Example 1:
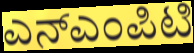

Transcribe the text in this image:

ಎನ್ಎಂಪಿಟಿ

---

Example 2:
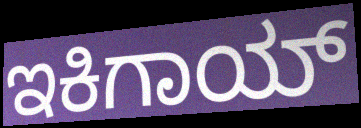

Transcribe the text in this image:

ಇಕಿಗಾಯ್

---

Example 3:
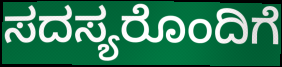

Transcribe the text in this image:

ಸದಸ್ಯರೊಂದಿಗೆ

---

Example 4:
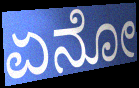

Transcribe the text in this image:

ಏನೋ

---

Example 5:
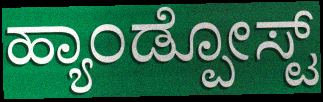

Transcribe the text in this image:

ಹ್ಯಾಂಡ್ಪೋಸ್ಟ್